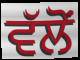
ਵੱਲੋਂ